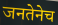
जनतेनेच